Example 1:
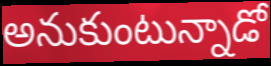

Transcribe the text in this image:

అనుకుంటున్నాడో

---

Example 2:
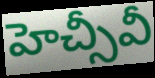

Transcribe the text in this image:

హెచ్సీవీ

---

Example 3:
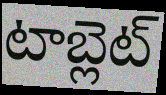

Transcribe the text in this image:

టాబ్లెట్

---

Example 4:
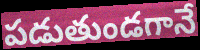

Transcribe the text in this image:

పడుతుండగానే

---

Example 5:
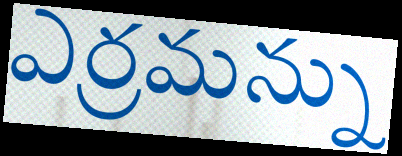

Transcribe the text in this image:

ఎర్రమన్ను